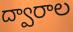
ద్వారాల